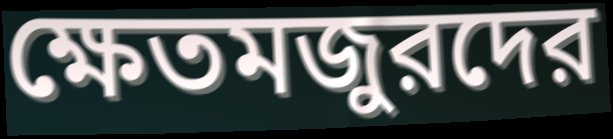
ক্ষেতমজুরদের